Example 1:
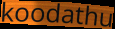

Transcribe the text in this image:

koodathu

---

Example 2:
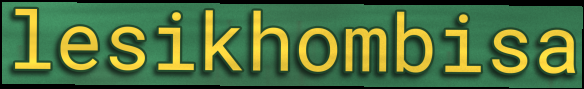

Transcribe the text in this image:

lesikhombisa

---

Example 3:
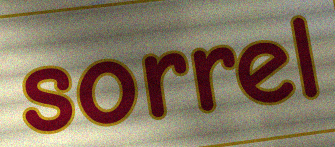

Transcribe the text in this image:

sorrel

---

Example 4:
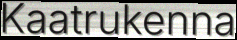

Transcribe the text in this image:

Kaatrukenna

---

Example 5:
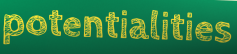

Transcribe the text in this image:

potentialities